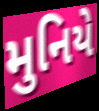
મુનિયે